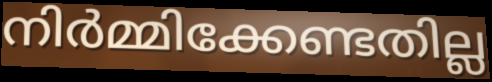
നിർമ്മിക്കേണ്ടതില്ല